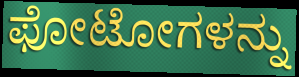
ಫೋಟೋಗಳನ್ನು